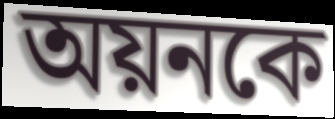
অয়নকে